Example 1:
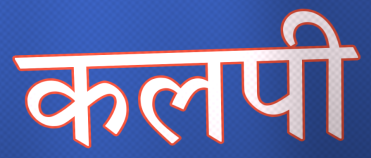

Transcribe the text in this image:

कलपी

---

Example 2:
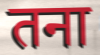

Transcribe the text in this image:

तना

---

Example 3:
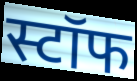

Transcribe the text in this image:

स्टॉफ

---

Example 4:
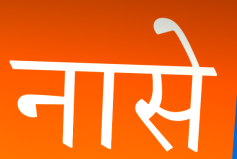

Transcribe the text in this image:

नासे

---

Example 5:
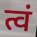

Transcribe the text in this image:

त्वं